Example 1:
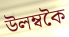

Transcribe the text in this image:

উলম্বকৈ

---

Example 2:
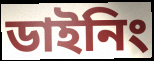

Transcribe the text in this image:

ডাইনিং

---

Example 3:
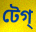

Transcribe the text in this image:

টেগ্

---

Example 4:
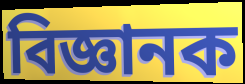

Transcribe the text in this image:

বিজ্ঞানক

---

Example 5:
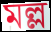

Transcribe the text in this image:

মল্ল